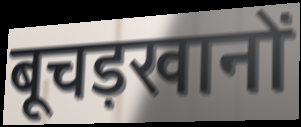
बूचड़खानों